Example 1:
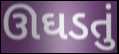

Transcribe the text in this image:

ઊઘડતું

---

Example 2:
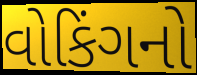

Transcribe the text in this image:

વોકિંગનો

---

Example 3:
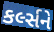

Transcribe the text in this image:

કર્લ્સને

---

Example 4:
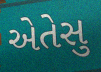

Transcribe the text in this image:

એતેસુ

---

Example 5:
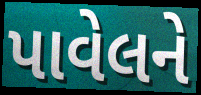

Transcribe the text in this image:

પાવેલને